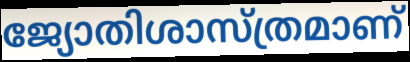
ജ്യോതിശാസ്ത്രമാണ്